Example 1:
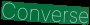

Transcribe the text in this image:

Converse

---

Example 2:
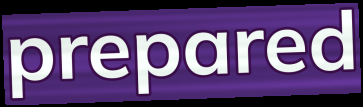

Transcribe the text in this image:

prepared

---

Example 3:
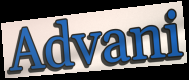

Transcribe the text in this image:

Advani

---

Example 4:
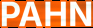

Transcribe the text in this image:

PAHN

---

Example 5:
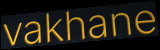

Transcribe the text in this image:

vakhane